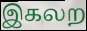
இகலற